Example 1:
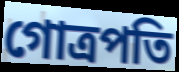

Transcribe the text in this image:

গোত্রপতি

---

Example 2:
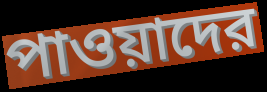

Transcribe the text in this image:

পাওয়াদের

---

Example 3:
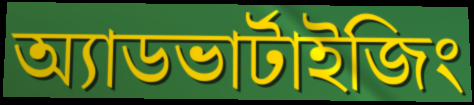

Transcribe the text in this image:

অ্যাডভার্টাইজিং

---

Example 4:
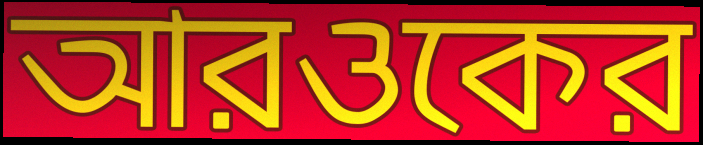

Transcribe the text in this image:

আরওকের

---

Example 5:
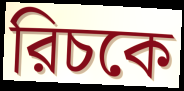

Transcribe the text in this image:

রিচকে